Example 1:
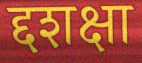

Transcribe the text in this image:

द्दशक्षा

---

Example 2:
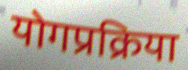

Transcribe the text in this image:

योगप्रक्रिया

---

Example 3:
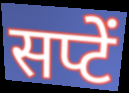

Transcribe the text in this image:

सप्टें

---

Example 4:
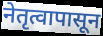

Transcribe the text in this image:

नेतृत्वापासून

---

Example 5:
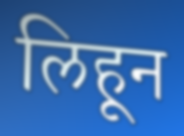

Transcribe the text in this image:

लिहून